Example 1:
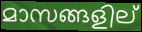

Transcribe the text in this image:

മാസങ്ങളില്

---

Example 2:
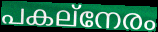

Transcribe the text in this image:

പകല്നേരം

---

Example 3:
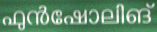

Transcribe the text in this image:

ഫുൻഷോലിങ്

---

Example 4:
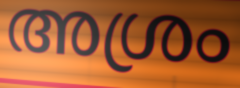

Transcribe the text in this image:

അശ്രം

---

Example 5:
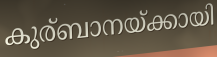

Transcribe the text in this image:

കുര്ബാനയ്ക്കായി